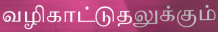
வழிகாட்டுதலுக்கும்